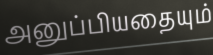
அனுப்பியதையும்